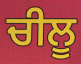
ਚੀਲੂ